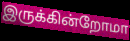
இருக்கின்றோமா